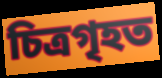
চিত্ৰগৃহত